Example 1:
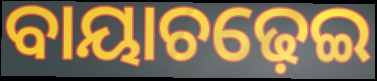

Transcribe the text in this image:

ବାୟାଚଢ଼େଇ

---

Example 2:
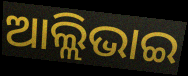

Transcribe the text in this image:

ଆଲ୍ଲିଭାଇ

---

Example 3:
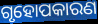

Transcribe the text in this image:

ଗୃହୋପକାରଣ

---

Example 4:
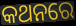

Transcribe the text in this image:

କଥନରେ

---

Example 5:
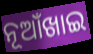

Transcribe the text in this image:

ନୂଆଁଖାଇ